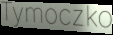
Tymoczko